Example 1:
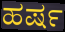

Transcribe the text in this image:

ಹರ್ಷ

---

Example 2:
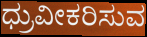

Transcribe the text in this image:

ಧ್ರುವೀಕರಿಸುವ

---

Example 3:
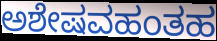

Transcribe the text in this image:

ಅಶೇಷವಹಂತಹ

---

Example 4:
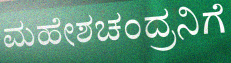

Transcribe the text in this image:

ಮಹೇಶಚಂದ್ರನಿಗೆ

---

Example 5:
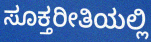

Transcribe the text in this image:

ಸೂಕ್ತರೀತಿಯಲ್ಲಿ